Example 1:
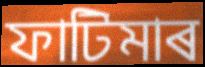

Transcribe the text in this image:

ফাটিমাৰ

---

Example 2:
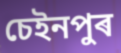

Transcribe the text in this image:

চেইনপুৰ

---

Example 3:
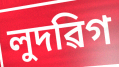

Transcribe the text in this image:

লুদৱিগ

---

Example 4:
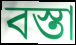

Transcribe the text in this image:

বস্তা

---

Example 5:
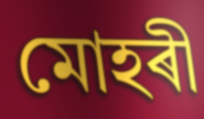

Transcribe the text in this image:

মোহৰী